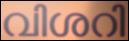
വിശറി